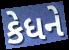
કેધને